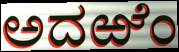
ಅದಱೆಂ